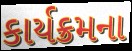
કાર્યક્રમના